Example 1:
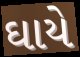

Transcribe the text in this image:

ઘાયે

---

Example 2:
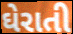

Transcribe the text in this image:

ઘેરાતી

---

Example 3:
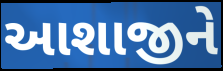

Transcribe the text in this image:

આશાજીને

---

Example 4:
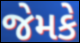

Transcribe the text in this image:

જેમકે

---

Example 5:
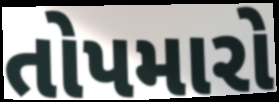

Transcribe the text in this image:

તોપમારો